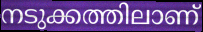
നടുക്കത്തിലാണ്